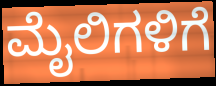
ಮೈಲಿಗಳಿಗೆ